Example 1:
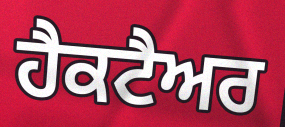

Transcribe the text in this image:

ਹੈਕਟੈਅਰ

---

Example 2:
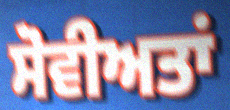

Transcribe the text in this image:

ਸੋਵੀਅਤਾਂ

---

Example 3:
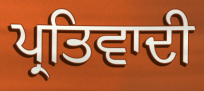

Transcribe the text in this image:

ਪ੍ਰਤਿਵਾਦੀ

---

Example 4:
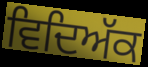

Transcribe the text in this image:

ਵਿਦਿਅੱਕ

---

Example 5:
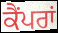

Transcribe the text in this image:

ਕੈਂਪਰਾਂ